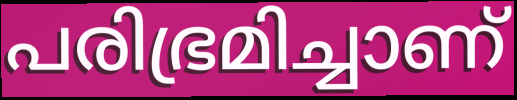
പരിഭ്രമിച്ചാണ്